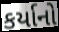
કર્યાનો